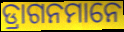
ଡ୍ରାଗନମାନେ